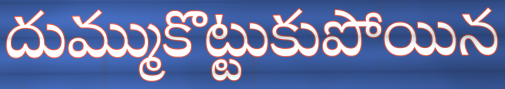
దుమ్ముకొట్టుకుపోయిన